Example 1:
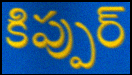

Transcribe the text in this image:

కిప్పుర్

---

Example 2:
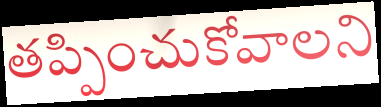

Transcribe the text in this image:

తప్పించుకోవాలని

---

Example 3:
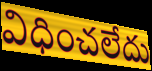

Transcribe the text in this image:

విధించలేదు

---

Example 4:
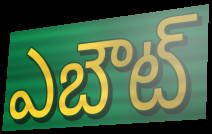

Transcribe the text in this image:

ఎబౌట్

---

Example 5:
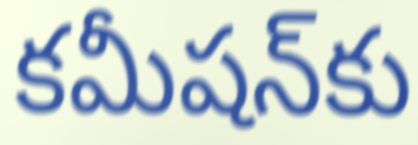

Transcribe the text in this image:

కమీషన్‌కు